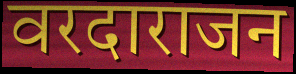
वरदाराजन